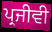
ਪ੍ਰਜੀਵੀ